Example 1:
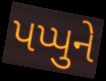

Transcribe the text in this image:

પપ્પુને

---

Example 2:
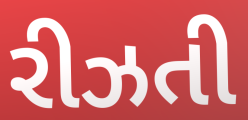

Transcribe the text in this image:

રીઝતી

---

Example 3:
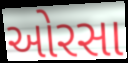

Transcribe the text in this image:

ઓરસા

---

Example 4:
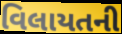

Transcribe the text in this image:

વિલાયતની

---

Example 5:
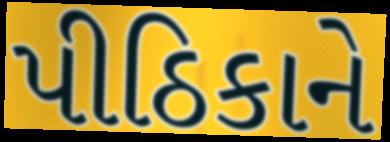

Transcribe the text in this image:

પીઠિકાને